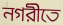
নগরীতে